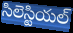
సిలెస్టియల్